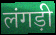
लंगड़ी